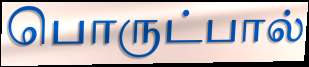
பொருட்பால்